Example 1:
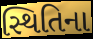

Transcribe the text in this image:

સ્થિતિના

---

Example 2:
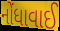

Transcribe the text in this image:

નોંધાવાઈ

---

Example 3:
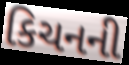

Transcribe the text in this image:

કિચનની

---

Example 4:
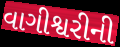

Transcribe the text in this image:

વાગીશ્વરીની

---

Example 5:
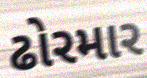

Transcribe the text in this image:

ઢોરમાર